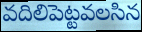
వదిలిపెట్టవలసిన